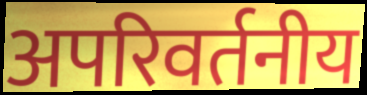
अपरिवर्तनीय